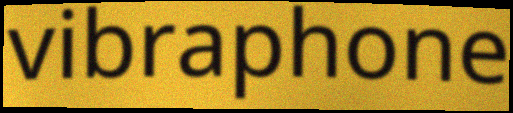
vibraphone